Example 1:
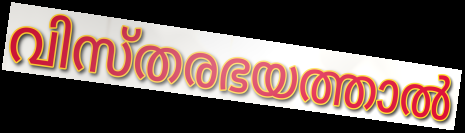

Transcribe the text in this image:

വിസ്തരഭയത്താൽ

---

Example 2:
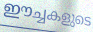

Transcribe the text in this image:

ഈച്ചകളുടെ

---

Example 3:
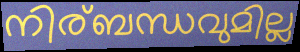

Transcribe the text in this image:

നിര്ബന്ധവുമില്ല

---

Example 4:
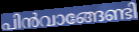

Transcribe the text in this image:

പിൻവാങ്ങേണ്ടി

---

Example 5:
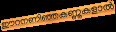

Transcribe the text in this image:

ഈറനണിഞ്ഞകണ്ണുകളാൽ